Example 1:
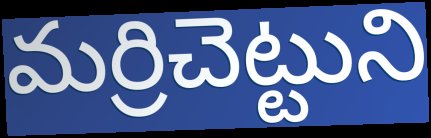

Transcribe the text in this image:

మర్రిచెట్టుని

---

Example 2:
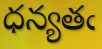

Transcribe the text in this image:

ధన్యతఁ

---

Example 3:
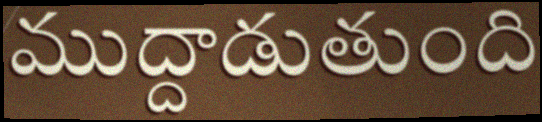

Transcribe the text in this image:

ముద్దాడుతుంది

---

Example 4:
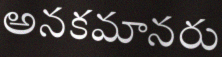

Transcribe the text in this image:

అనకమానరు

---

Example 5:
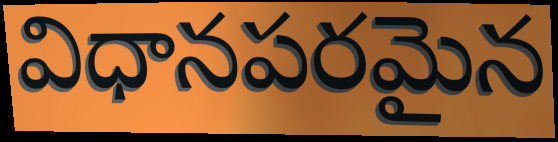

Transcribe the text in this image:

విధానపరమైన